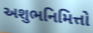
અશુભનિમિત્તો